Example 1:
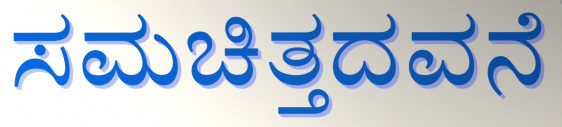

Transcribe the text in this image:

ಸಮಚಿತ್ತದವನೆ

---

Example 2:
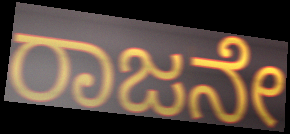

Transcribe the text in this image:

ರಾಜನೇ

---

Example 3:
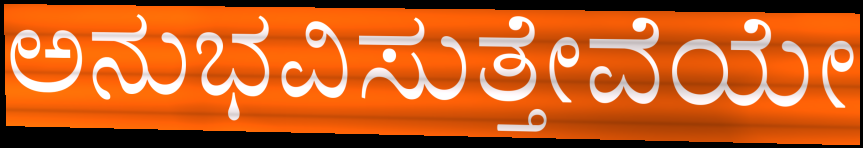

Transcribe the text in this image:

ಅನುಭವಿಸುತ್ತೇವೆಯೇ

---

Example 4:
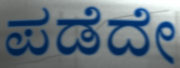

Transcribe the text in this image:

ಪಡೆದೇ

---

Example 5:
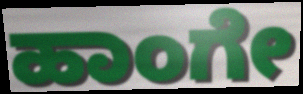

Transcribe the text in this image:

ಹಾಂಗೇ